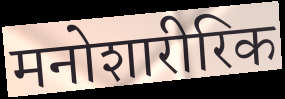
मनोशारीरिक